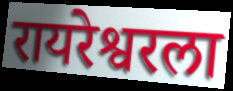
रायरेश्वरला